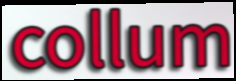
collum